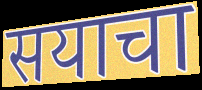
सयाचा